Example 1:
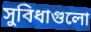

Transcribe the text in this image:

সুবিধাগুলো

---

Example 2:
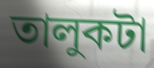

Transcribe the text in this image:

তালুকটা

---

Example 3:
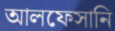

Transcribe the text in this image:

আলফেসানি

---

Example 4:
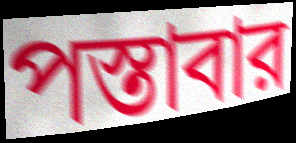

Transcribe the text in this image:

পস্তাবার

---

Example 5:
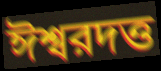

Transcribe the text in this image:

ঈশ্বরদত্ত